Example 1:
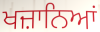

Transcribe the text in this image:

ਖਜ਼ਾਨਿਆਂ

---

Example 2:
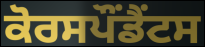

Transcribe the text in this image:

ਕੋਰਸਪੌਂਡੈਂਟਸ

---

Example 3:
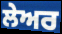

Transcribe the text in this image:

ਲੇਅਰ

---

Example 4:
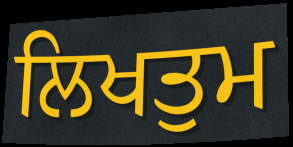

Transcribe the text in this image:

ਲਿਖਤੁਮ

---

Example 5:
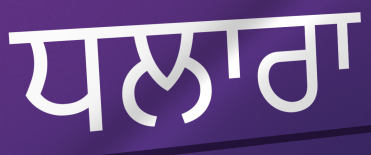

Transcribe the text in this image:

ਧਲਾਰਾ